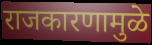
राजकारणामुळे